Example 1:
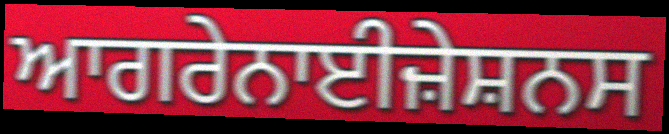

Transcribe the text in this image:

ਆਗਰੇਨਾਈਜ਼ੇਸ਼ਨਸ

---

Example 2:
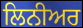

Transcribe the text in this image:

ਲਿਨੀਅਰ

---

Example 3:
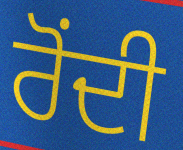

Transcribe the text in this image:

ਰੋਂਦੀ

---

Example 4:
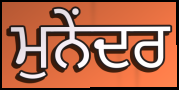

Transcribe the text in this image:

ਮੁਨੇਂਦਰ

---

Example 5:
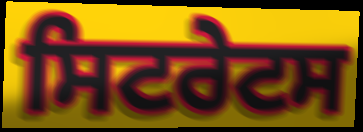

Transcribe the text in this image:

ਸਿਟਰੇਟਸ